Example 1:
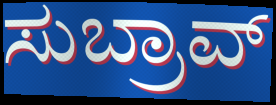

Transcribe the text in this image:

ಸುಬ್ರಾವ್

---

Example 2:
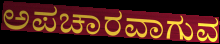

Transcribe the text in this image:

ಅಪಚಾರವಾಗುವ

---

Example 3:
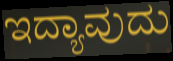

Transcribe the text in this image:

ಇದ್ಯಾವುದು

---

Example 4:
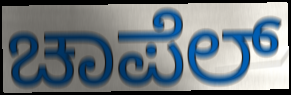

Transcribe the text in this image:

ಚಾಪೆಲ್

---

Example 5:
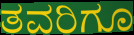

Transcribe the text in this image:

ತವರಿಗೂ